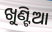
ଖୁଣ୍ଟିଆ